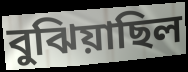
বুঝিয়াছিল